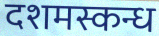
दशमस्कन्ध